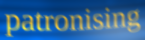
patronising